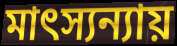
মাৎস্যন্যায়